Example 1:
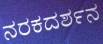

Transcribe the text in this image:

ನರಕದರ್ಶನ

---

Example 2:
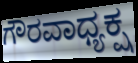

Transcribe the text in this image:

ಗೌರವಾಧ್ಯಕ್ಷ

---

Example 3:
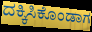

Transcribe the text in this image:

ದಕ್ಕಿಸಿಕೊಂಡಾಗ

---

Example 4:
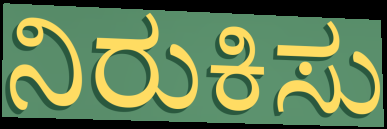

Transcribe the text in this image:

ನಿರುಕಿಸು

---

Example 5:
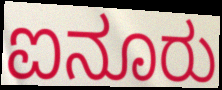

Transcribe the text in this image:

ಐನೂರು